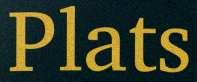
Plats